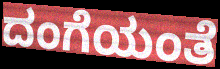
ದಂಗೆಯಂತೆ